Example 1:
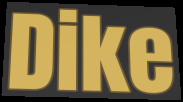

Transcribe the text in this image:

Dike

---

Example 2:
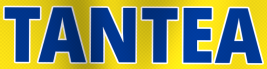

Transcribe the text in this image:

TANTEA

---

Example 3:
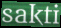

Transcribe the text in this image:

sakti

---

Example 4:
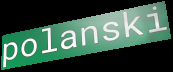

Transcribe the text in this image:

polanski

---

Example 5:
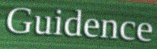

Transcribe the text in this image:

Guidence